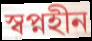
স্বপ্নহীন